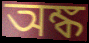
অঙ্ক